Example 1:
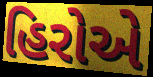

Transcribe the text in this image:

હિરોએ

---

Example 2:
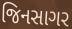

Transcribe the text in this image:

જિનસાગર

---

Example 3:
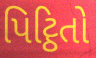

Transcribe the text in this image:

પિટ્ઠિતો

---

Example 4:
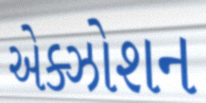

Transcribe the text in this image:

એક્ઝોશન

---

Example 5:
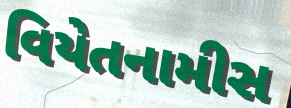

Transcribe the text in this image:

વિયેતનામીસ